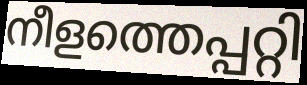
നീളത്തെപ്പറ്റി